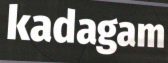
kadagam